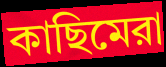
কাছিমেরা